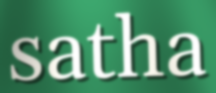
satha